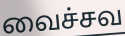
வைச்சவ